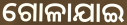
ଗୋଳାଯାଇ